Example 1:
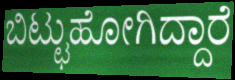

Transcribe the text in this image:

ಬಿಟ್ಟುಹೋಗಿದ್ದಾರೆ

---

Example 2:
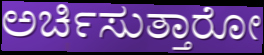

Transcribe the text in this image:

ಅರ್ಚಿಸುತ್ತಾರೋ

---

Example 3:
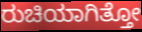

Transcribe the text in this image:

ರುಚಿಯಾಗಿತ್ತೋ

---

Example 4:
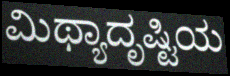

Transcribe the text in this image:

ಮಿಥ್ಯಾದೃಷ್ಟಿಯ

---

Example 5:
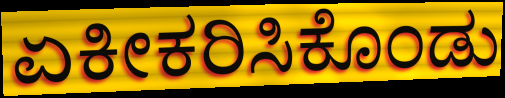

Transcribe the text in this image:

ಏಕೀಕರಿಸಿಕೊಂಡು